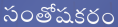
సంతోషకరం